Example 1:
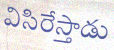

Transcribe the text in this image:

విసిరేస్తాడు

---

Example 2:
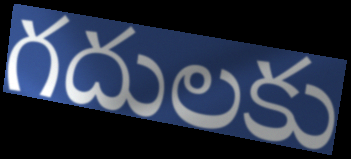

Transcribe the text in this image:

గదులకు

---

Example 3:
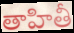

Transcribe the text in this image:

తాహితీ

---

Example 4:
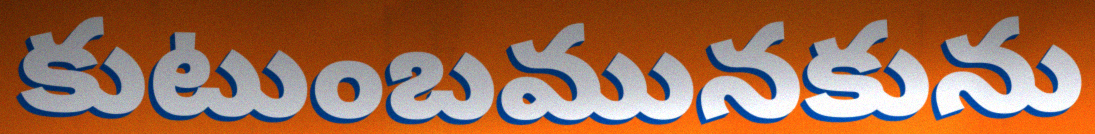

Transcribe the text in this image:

కుటుంబమునకును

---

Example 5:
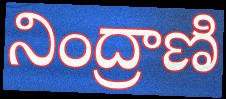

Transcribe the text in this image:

నింద్రాణి